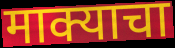
माक्याचा